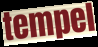
tempel